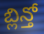
బ్లిన్తో